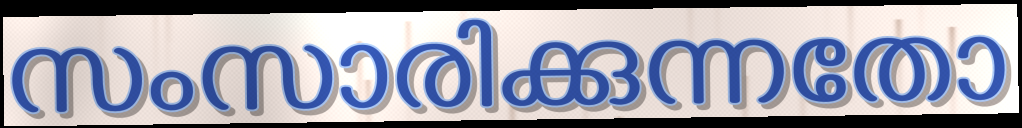
സംസാരിക്കുന്നതോ